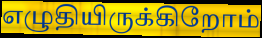
எழுதியிருக்கிறோம்